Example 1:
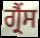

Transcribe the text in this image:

ਗ੍ਰੈਂਸ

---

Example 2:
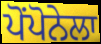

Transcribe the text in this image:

ਪੋਂਪੋਨੇਲਾ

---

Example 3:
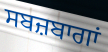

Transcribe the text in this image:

ਸਬਜ਼ਬਾਗਾਂ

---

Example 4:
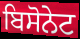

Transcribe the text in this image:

ਬਿਸੋਨੇਟ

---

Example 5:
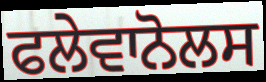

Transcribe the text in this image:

ਫਲੇਵਾਨੋਲਸ